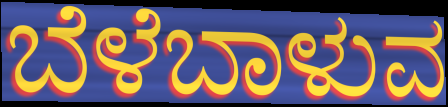
ಬೆಳೆಬಾಳುವ